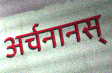
अर्चनानस्